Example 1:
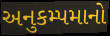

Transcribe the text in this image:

અનુકમ્પમાનો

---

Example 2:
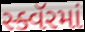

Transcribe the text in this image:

સ્ક્વૅરમાં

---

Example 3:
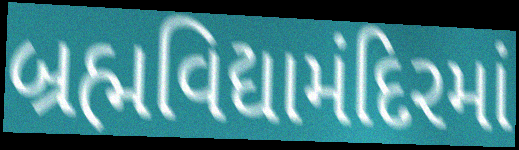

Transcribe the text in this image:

બ્રહ્મવિદ્યામંદિરમાં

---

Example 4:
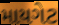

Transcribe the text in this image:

માયગેટ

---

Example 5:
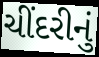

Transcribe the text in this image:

ચીંદરીનું